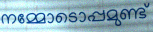
നമ്മോടൊപ്പമുണ്ട്